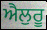
ਐਲੁਰੂ